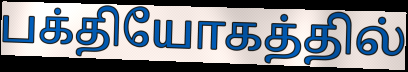
பக்தியோகத்தில்